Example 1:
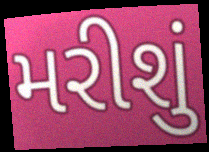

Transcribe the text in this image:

મરીશું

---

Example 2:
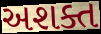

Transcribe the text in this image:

અશક્ત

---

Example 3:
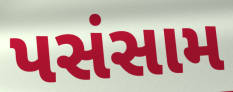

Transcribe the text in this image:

પસંસામ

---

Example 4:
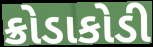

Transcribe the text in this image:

ક્રોડાકોડી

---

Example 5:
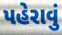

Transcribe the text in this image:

પહેરાવું